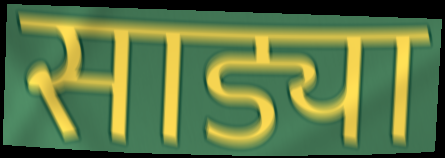
साड्या